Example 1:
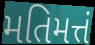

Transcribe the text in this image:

મતિમત્તં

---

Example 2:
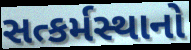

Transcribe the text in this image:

સત્કર્મસ્થાનો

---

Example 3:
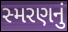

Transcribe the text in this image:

સ્મરણનું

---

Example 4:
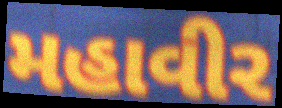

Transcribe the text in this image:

મહાવીર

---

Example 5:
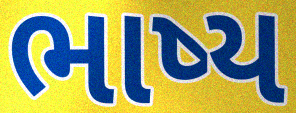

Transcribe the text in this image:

ભાષ્ય